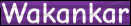
Wakankar